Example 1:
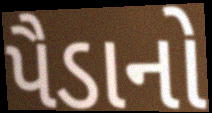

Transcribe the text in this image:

પૈડાનો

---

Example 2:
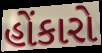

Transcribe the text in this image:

હોંકારો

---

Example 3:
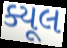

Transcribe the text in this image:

ક્યૂલ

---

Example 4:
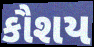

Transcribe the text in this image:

કૌશય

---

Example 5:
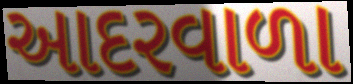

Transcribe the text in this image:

આદરવાળા